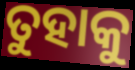
ତୁହାକୁ